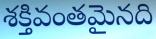
శక్తివంతమైనది